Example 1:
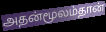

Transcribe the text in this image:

அதன்மூலம்தான்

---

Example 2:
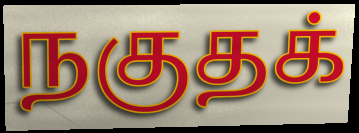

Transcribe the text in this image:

நகுதக்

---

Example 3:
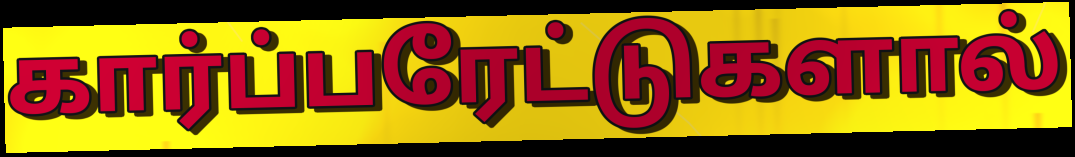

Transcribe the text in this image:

கார்ப்பரேட்டுகளால்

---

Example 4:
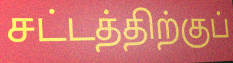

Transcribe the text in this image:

சட்டத்திற்குப்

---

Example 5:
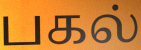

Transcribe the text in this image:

பகல்